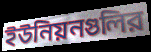
ইউনিয়নগুলির